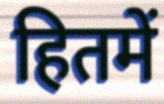
हितमें